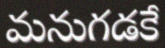
మనుగడకే